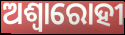
ଅଶ୍ଵାରୋହୀ